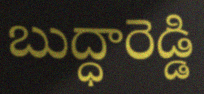
బుద్ధారెడ్డి